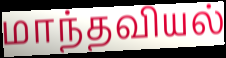
மாந்தவியல்